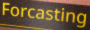
Forcasting